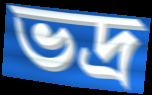
ভদ্র